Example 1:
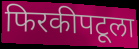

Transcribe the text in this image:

फिरकीपटूला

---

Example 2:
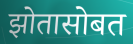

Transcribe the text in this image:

झोतासोबत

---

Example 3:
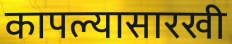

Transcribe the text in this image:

कापल्यासारखी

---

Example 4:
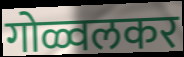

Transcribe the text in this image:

गोळ्वलकर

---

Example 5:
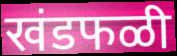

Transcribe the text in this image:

खंडफळी